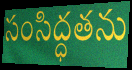
సంసిద్ధతను